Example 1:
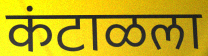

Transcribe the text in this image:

कंटाळला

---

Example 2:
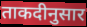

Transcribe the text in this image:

ताकदीनुसार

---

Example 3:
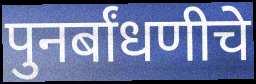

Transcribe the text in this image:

पुनर्बांधणीचे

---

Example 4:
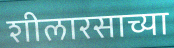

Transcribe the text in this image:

शीलारसाच्या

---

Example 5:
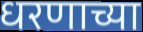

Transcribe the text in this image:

धरणाच्या